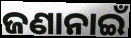
ଜଣାନାଇଁ